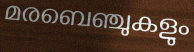
മരബെഞ്ചുകളും